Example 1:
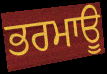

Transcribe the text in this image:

ਭਰਮਾਊ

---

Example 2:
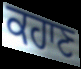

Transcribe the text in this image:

ਕਹਾਣ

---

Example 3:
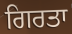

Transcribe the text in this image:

ਗਿਰਤਾ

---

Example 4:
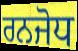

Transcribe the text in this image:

ਰਨਜੋਧ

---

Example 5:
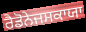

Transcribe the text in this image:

ਰੈਡੋਨੇਜਸਕਾਯਾ